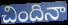
చిందినా